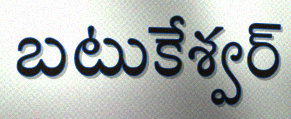
బటుకేశ్వర్